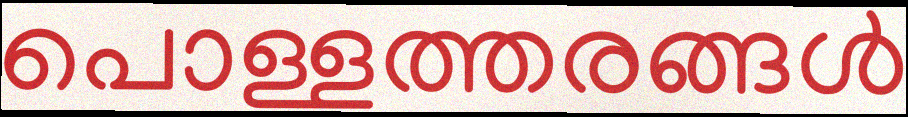
പൊള്ളത്തരങ്ങൾ